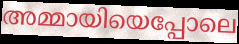
അമ്മായിയെപ്പോലെ